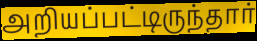
அறியப்பட்டிருந்தார்